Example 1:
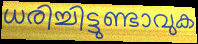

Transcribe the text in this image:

ധരിച്ചിട്ടുണ്ടാവുക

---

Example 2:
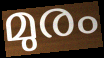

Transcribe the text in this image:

മുരം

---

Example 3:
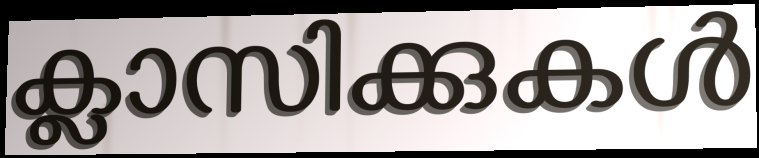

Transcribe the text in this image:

ക്ലാസിക്കുകൾ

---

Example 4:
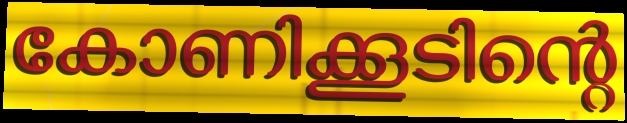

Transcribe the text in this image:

കോണിക്കൂടിന്റെ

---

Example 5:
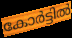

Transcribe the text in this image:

കോർട്ടിൽ